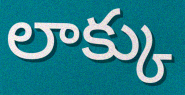
లాక్కు